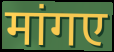
मांगए